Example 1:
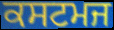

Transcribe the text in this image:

ਕਸਟਮਜ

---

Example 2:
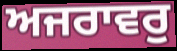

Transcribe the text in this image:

ਅਜਰਾਵਰੁ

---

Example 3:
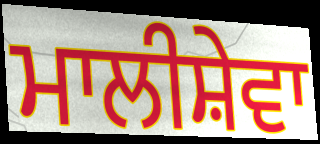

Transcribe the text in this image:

ਮਾਲੀਸ਼ੇਵਾ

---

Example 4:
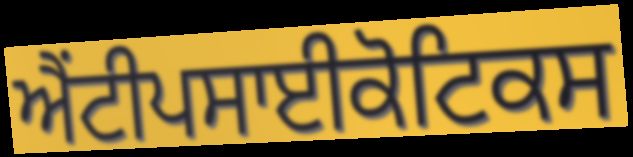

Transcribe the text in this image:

ਐਂਟੀਪਸਾਈਕੋਟਿਕਸ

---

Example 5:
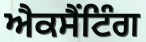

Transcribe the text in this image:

ਐਕਸੈਂਟਿੰਗ